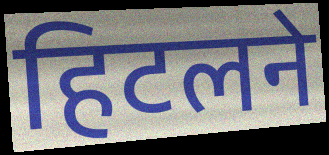
हिटलने